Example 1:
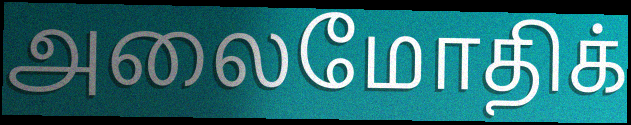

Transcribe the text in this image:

அலைமோதிக்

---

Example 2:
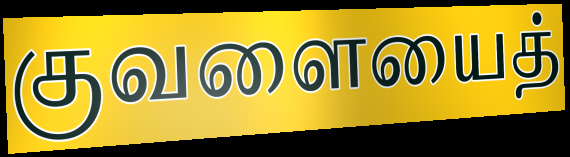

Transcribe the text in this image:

குவளையைத்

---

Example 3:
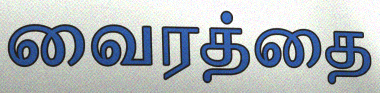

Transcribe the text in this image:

வைரத்தை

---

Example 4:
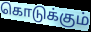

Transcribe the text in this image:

கொடுக்கும்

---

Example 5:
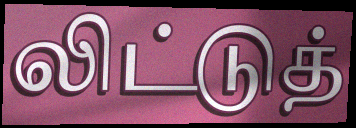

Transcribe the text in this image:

லிட்டுத்